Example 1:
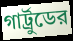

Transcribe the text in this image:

গার্ট্রুডের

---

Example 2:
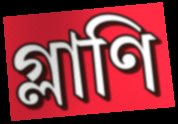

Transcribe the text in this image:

গ্লাণি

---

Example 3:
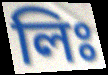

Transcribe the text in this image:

লিঃ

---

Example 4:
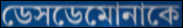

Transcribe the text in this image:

ডেসডেমোনাকে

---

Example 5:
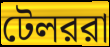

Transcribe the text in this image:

টেলররা